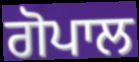
ਗੋਪਾਲ